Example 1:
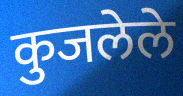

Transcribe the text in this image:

कुजलेले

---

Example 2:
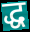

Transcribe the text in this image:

द्ध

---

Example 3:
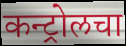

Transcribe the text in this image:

कन्ट्रोलचा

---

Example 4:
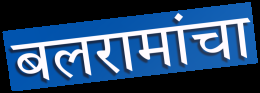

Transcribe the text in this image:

बलरामांचा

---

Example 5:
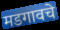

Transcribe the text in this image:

मडगावचे